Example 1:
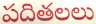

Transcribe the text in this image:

పదితలలు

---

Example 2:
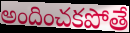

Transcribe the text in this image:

అందించకపోతే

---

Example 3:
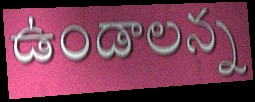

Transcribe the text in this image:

ఉండాలన్న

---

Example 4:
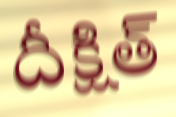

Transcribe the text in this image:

దీక్షిత్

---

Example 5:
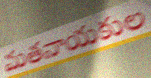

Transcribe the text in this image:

మతనాయకుల